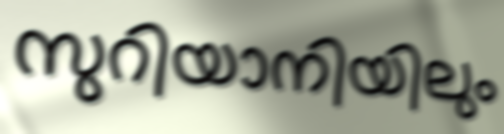
സുറിയാനിയിലും